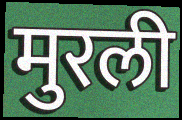
मुरली